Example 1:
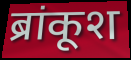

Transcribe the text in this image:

ब्रांकूश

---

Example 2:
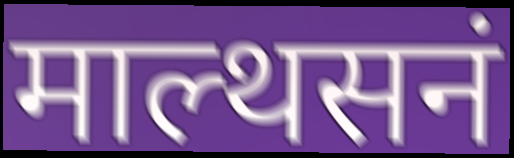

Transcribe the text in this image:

माल्थसनं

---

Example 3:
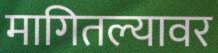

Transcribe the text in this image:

मागितल्यावर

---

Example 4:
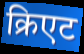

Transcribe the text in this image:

क्रिएट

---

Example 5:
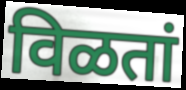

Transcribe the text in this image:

विळतां